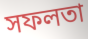
সফলতা